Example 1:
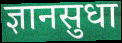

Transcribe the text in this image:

ज्ञानसुधा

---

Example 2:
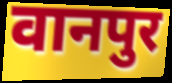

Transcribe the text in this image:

वानपुर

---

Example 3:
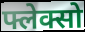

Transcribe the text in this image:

फ्लेक्सो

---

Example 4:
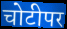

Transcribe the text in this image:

चोटीपर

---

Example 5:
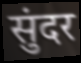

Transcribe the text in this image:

सुंदर